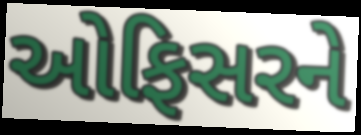
ઓફિસરને